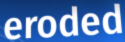
eroded